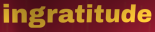
ingratitude